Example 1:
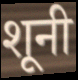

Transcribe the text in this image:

शूनी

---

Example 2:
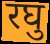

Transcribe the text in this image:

रघु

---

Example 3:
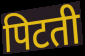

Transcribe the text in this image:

पिटती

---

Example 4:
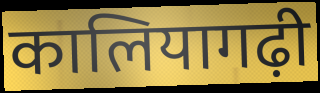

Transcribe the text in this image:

कालियागढ़ी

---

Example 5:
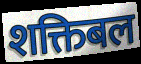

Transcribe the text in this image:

शक्तिबल